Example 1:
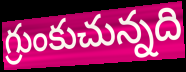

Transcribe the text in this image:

గ్రుంకుచున్నది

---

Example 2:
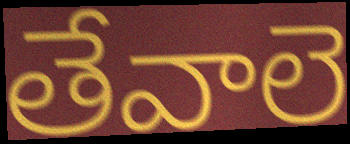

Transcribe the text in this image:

తేవాలె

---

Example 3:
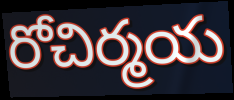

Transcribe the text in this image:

రోచిర్మయ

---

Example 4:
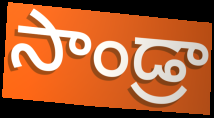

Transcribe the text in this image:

సాండ్రా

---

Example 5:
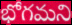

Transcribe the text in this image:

భోగమని